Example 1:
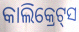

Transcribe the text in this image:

କାଲିକ୍ରେଟ୍‍ସ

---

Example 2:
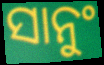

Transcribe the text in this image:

ସାନୁଂ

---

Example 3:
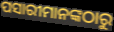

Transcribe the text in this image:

ପସାରୀମାନଙ୍କଠାରୁ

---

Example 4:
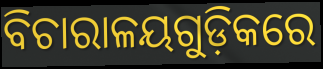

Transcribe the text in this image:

ବିଚାରାଳୟଗୁଡ଼ିକରେ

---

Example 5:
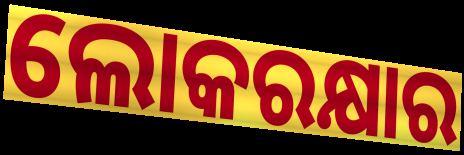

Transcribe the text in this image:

ଲୋକରକ୍ଷାର